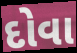
દોવા